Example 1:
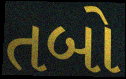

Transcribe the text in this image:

તબો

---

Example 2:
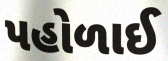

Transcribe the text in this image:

પહોળાઈ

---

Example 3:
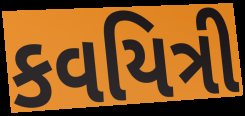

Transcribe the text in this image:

કવયિત્રી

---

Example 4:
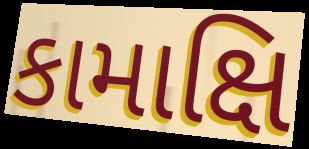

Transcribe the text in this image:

કામાક્ષિ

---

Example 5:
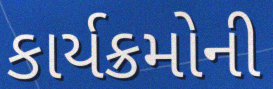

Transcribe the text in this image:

કાર્યક્રમોની